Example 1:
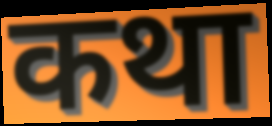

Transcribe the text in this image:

कथा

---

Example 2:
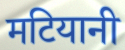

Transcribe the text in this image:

मटियानी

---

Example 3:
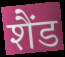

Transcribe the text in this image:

शैंड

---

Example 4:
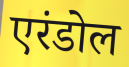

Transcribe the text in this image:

एरंडोल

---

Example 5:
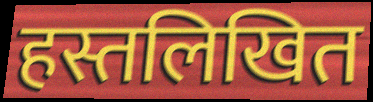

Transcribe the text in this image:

हस्तलिखित